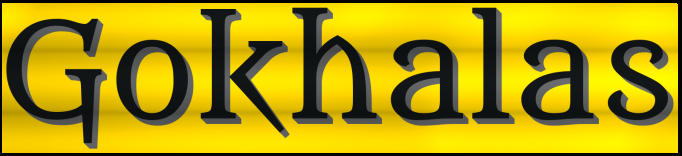
Gokhalas